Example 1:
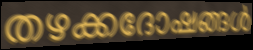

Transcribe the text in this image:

തഴക്കദോഷങ്ങൾ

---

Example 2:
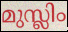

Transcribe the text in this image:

മുസ്ലിം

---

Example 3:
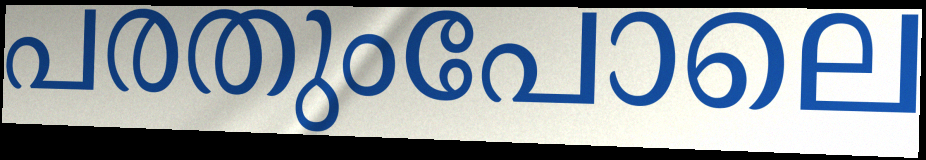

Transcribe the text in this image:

പരതുംപോലെ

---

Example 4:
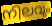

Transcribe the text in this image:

നിലവും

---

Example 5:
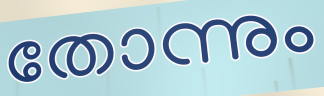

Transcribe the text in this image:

തോന്നും